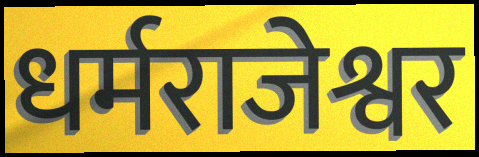
धर्मराजेश्वर